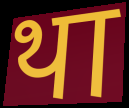
था